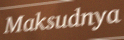
Maksudnya